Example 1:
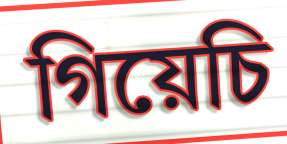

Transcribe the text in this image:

গিয়েচি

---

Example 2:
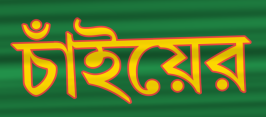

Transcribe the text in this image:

চাঁইয়ের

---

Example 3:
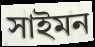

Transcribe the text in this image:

সাইমন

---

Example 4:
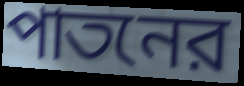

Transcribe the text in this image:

পাতনের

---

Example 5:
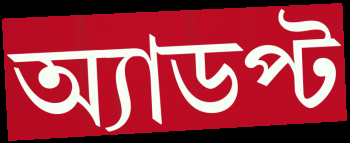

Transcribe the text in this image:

অ্যাডপ্ট